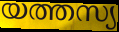
യത്തസ്യ